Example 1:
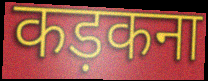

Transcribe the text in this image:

कड़कना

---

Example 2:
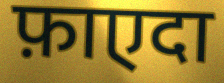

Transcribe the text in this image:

फ़ाएदा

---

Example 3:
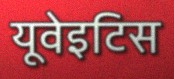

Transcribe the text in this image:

यूवेइटिस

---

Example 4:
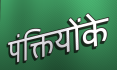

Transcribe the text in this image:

पंक्तियोंके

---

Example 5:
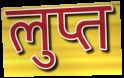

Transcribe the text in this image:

लुप्त